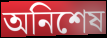
অনিশেষ